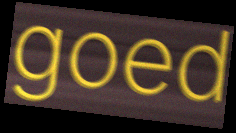
goed